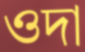
ওদা